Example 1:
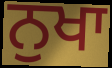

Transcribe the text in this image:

ਨੁਖਾ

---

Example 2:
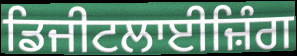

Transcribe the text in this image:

ਡਿਜੀਟਲਾਈਜ਼ਿੰਗ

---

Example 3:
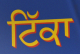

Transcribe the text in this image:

ਟਿੱਕਾ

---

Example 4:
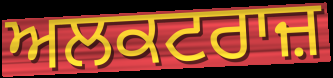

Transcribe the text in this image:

ਅਲਕਟਰਾਜ਼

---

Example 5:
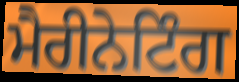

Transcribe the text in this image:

ਮੈਰੀਨੇਟਿੰਗ